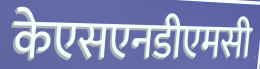
केएसएनडीएमसी